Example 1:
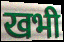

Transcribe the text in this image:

खभी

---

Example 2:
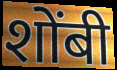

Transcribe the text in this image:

शोंबी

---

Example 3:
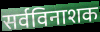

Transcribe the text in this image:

सर्वविनाशक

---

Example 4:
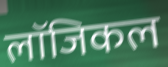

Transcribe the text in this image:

लॉजिकल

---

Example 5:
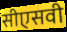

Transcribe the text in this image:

सीएसवी